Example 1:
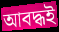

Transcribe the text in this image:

আবদ্ধই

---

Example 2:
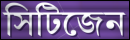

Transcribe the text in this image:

সিটিজেন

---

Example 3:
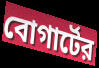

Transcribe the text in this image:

বোগার্টের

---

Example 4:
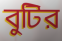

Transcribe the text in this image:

বুটির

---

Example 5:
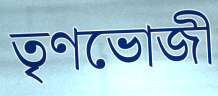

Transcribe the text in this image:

তৃণভোজী